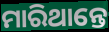
ମାରିଥାନ୍ତେ